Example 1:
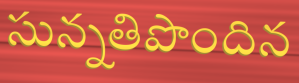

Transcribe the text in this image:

సున్నతిపొందిన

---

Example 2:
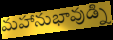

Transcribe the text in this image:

మహానుభావుడ్ని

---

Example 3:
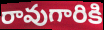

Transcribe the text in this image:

రావుగారికి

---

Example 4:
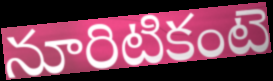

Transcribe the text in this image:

నూరిటికంటె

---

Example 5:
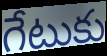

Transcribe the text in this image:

గేటుకు